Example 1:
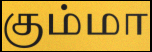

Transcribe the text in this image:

கும்மா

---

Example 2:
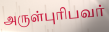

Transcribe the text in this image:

அருள்புரிபவர்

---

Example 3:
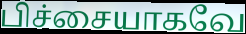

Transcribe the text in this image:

பிச்சையாகவே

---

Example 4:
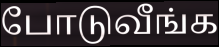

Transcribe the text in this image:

போடுவீங்க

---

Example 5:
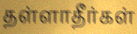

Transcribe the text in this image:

தள்ளாதீர்கள்